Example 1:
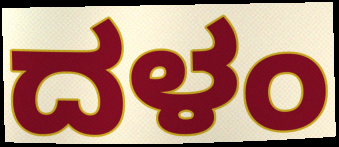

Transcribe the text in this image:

ದಳಂ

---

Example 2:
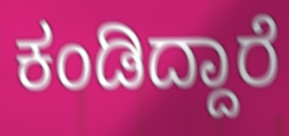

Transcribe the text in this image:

ಕಂಡಿದ್ದಾರೆ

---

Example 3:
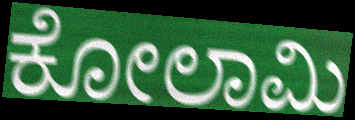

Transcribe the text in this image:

ಕೋಲಾಮಿ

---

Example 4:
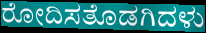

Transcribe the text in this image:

ರೋದಿಸತೊಡಗಿದಳು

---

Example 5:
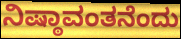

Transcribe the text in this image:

ನಿಷ್ಠಾವಂತನೆಂದು